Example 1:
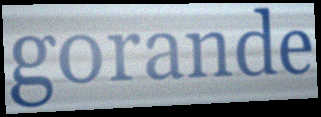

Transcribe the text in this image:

gorande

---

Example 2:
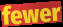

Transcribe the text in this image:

fewer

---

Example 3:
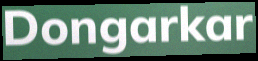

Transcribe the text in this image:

Dongarkar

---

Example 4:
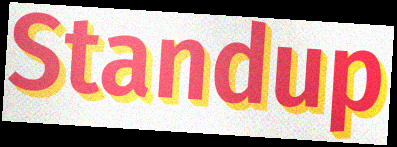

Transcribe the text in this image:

Standup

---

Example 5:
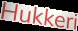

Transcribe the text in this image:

Hukkeri